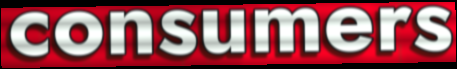
consumers